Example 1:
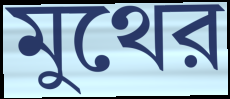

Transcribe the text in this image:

মুথের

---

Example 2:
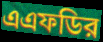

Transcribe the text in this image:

এএফডির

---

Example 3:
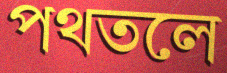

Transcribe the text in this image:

পথতলে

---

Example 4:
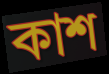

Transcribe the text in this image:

কাশ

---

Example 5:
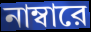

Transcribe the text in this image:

নাম্বারে